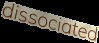
dissociated